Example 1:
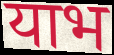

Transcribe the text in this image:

याभ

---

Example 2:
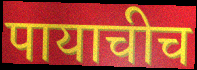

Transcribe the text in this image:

पायाचीच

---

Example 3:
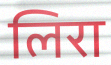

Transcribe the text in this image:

लिरा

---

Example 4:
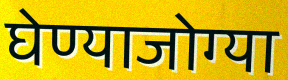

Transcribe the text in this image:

घेण्याजोग्या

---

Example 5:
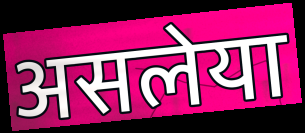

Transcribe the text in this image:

असलेया